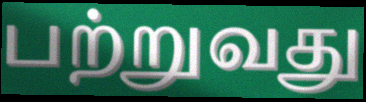
பற்றுவது